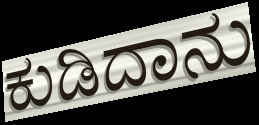
ಕುಡಿದಾನು